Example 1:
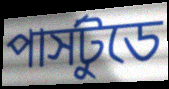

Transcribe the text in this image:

পার্সটুডে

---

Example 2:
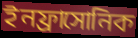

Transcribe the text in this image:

ইনফ্রাসোনিক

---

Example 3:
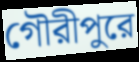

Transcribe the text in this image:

গৌরীপুরে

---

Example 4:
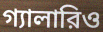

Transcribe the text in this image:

গ্যালারিও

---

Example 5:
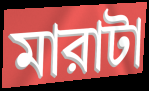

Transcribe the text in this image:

মারাটা